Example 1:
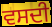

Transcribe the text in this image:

ਵਸਦੀ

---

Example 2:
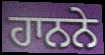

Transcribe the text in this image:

ਹਾਨਨੇ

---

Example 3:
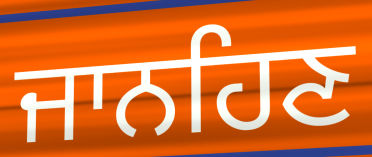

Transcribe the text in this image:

ਜਾਨਹਿਣ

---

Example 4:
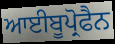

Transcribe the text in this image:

ਆਈਬੂਪ੍ਰੋਫੈਨ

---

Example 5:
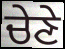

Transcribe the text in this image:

ਚੇਣੇ